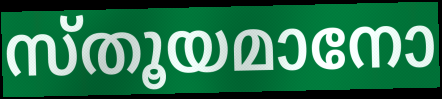
സ്തൂയമാനോ